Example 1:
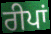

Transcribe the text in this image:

ਰੀਪਾਂ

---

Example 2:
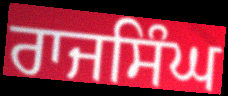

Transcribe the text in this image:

ਰਾਜਸਿੰਘ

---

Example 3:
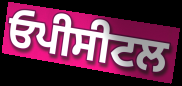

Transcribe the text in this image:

ਓਪੀਸੀਟਲ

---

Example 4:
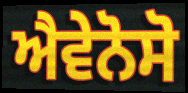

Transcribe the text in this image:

ਐਵੇਨੋਸੋ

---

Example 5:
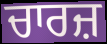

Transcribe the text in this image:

ਚਾਰਜ਼